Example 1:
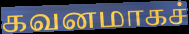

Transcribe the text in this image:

கவனமாகச்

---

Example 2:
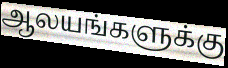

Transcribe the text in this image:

ஆலயங்களுக்கு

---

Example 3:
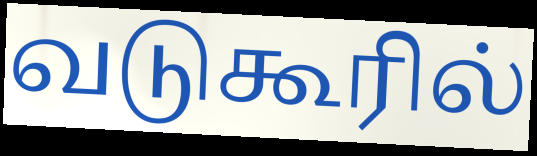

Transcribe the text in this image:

வடுகூரில்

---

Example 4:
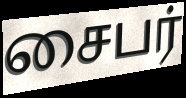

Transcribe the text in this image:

சைபர்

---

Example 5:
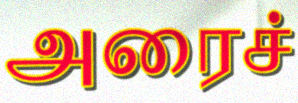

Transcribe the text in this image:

அரைச்